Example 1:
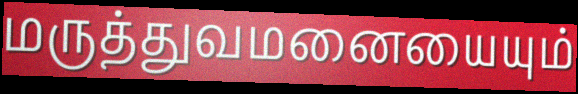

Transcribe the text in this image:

மருத்துவமனையையும்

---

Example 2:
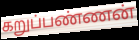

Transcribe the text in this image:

கறுப்பண்ணன்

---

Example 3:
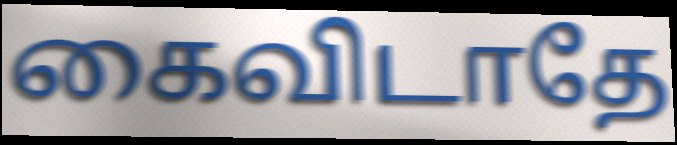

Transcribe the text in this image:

கைவிடாதே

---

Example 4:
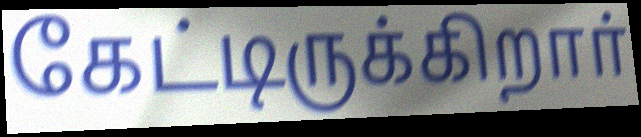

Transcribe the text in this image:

கேட்டிருக்கிறார்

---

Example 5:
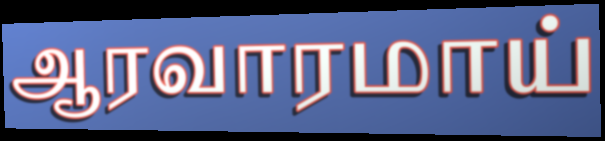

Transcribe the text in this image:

ஆரவாரமாய்